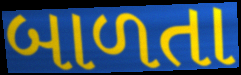
બાળતા